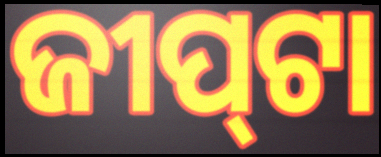
ଜୀପ୍‍ଟା